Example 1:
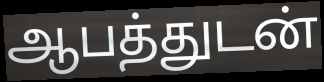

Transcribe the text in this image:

ஆபத்துடன்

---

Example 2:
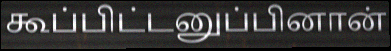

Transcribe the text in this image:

கூப்பிட்டனுப்பினான்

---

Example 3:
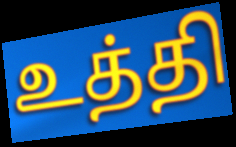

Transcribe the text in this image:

உத்தி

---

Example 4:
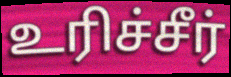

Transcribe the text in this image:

உரிச்சீர்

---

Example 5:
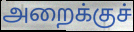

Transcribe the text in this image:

அறைக்குச்